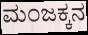
ಮಂಜಕ್ಕನ